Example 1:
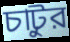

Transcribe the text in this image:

চাটুর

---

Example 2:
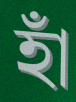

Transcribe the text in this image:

হাঁ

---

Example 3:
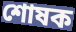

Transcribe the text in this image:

শোষক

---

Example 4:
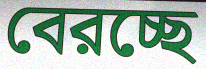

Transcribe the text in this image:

বেরচ্ছে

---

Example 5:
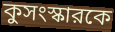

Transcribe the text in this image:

কুসংস্কারকে